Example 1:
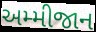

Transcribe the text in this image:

અમ્મીજાન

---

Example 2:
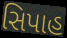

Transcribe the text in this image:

સિપાહ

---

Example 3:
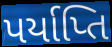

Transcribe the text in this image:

પર્યાપ્તિ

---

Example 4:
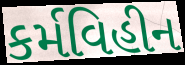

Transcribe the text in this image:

કર્મવિહીન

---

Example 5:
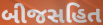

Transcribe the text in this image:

બીજસહિત